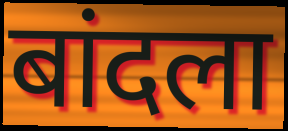
बांदला